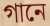
গানে